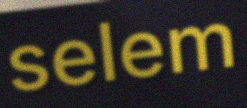
selem